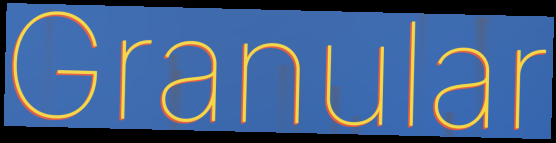
Granular